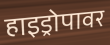
हाइड्रोपावर